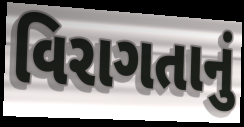
વિરાગતાનું